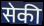
सेकी